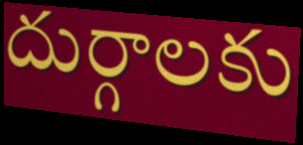
దుర్గాలకు